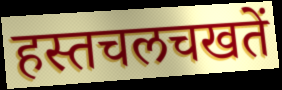
हस्तचलचखतें